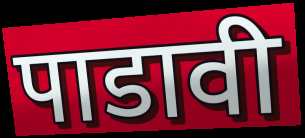
पाडावी